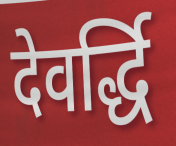
देवर्द्धि